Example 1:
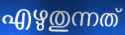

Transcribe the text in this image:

എഴുതുന്നത്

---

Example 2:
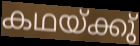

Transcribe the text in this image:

കഥയ്ക്കു്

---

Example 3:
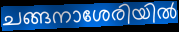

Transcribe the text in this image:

ചങ്ങനാശേരിയിൽ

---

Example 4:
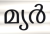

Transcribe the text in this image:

മ്യർ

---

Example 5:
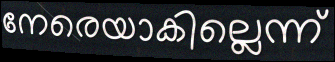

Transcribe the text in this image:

നേരെയാകില്ലെന്ന്